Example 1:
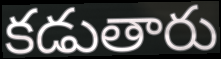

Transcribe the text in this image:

కడుతారు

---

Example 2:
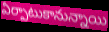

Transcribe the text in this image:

ఏర్పాటుకానున్నాయి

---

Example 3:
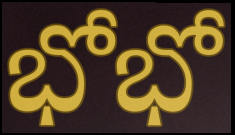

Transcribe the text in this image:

భోభో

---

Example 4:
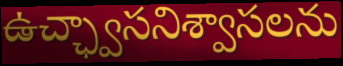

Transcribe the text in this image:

ఉచ్ఛ్వాసనిశ్వాసలను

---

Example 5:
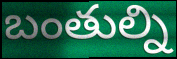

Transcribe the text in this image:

బంతుల్ని